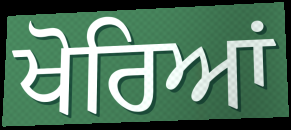
ਖੋਰਿਆਂ